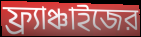
ফ্র্যাঞ্চাইজের